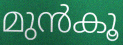
മുൻകൂ